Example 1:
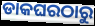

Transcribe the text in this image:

ଡାକଘରଠାରୁ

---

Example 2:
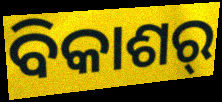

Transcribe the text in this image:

ବିକାଶର୍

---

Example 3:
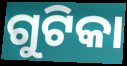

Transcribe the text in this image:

ଗୁଟିକା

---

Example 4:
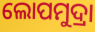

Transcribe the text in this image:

ଲୋପମୁଦ୍ରା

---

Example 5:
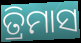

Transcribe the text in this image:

ତ୍ରିମାସ